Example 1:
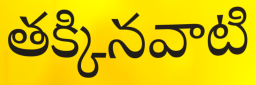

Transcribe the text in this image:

తక్కినవాటి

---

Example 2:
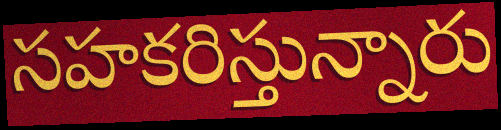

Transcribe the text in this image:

సహకరిస్తున్నారు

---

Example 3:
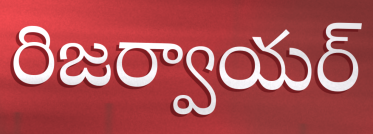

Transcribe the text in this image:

రిజర్వాయర్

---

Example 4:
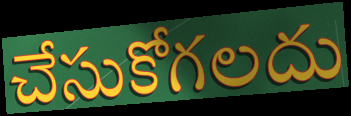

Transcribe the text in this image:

చేసుకోగలదు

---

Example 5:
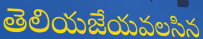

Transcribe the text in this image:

తెలియజేయవలసిన